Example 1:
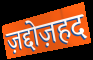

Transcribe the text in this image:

ज़द्दोज़हद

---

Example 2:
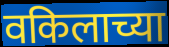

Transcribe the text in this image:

वकिलाच्या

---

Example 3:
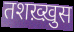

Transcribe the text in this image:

तशख़्ख़ुस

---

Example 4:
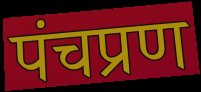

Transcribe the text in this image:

पंचप्रण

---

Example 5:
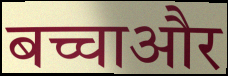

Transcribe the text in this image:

बच्चाऔर